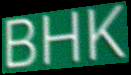
BHK